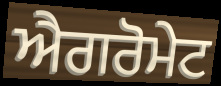
ਐਗਰੋਮੇਟ